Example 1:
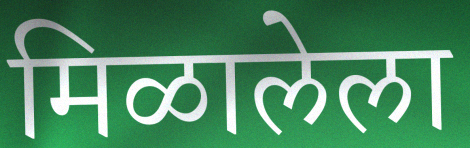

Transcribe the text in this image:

मिळालेला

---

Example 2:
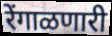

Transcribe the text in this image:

रेंगाळणारी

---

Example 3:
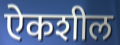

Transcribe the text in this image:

ऐकशील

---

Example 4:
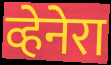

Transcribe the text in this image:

व्हेनेरा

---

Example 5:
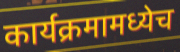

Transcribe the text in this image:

कार्यक्रमामध्येच